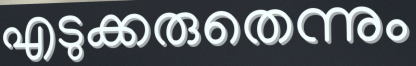
എടുക്കരുതെന്നും